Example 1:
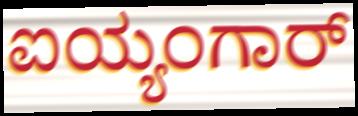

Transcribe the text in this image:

ಐಯ್ಯಂಗಾರ್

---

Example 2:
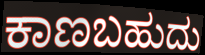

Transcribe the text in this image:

ಕಾಣಬಹುದು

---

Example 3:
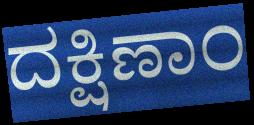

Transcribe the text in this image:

ದಕ್ಷಿಣಾಂ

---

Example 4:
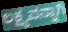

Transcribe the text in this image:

ಲಕ್ಷ್ಯವನ್ನಾಗಿ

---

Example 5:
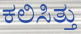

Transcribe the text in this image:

ಕಲಿಸಿತ್ತು